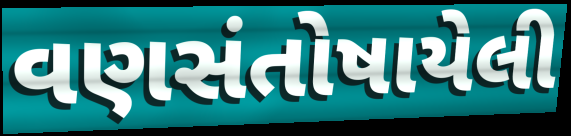
વણસંતોષાયેલી